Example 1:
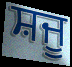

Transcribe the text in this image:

ਸ਼ਜੂ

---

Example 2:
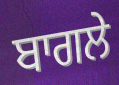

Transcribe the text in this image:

ਬਾਗਲੇ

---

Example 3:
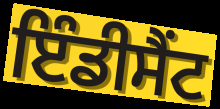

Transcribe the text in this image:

ਇੰਡੀਸੈਂਟ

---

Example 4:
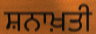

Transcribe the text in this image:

ਸ਼ਨਾਖ਼ਤੀ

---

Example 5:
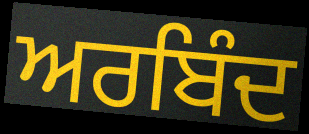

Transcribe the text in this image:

ਅਰਬਿੰਦ